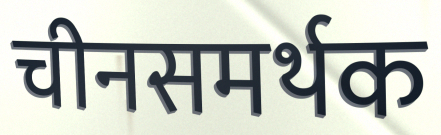
चीनसमर्थक